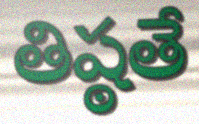
తిష్ఠతే